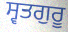
ਸ੍ਵਤਗੁਰੂ